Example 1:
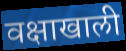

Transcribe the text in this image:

वक्षाखाली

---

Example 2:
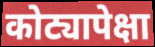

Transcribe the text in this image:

कोट्यापेक्षा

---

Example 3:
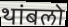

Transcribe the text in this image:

थांबलो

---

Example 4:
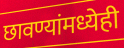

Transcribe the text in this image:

छावण्यांमध्येही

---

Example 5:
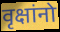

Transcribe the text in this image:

वृक्षांनो